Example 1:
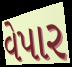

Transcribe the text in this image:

વેપાર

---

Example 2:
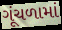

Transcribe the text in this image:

ગૂંચળામાં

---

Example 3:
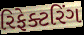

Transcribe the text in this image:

રિફેક્ટરિંગ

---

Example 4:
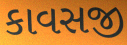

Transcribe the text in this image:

કાવસજી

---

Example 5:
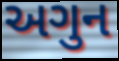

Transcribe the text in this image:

અગુન